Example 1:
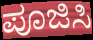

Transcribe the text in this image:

ಪೂಜಿಸಿ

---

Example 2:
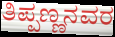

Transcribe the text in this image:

ತಿಪ್ಪಣ್ಣನವರ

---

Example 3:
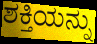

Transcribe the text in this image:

ಶಕ್ತಿಯನ್ನು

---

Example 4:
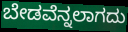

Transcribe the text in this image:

ಬೇಡವೆನ್ನಲಾಗದು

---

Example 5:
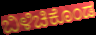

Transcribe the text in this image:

ಬಿಳಿಚಿಕೊಂಡ